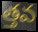
త్తవ